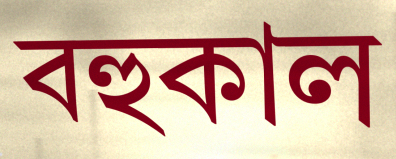
বহুকাল